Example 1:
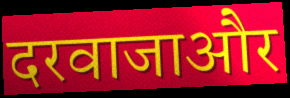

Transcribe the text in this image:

दरवाजाऔर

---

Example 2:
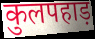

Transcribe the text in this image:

कुलपहाड़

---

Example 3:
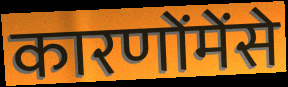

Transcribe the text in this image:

कारणोंमेंसे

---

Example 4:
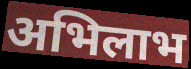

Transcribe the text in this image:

अभिलाभ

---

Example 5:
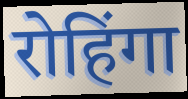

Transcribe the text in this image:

रोहिंगा